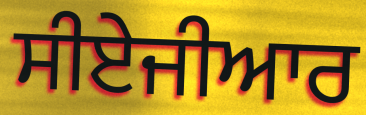
ਸੀਏਜੀਆਰ